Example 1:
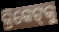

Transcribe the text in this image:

କ୍ରିକେଟ୍‌କୁ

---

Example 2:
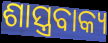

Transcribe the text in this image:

ଶାସ୍ତ୍ରବାକ୍ୟ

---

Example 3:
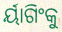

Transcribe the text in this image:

ର୍ୟାଗିଂକୁ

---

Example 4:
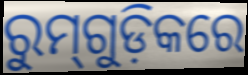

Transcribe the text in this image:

ରୁମ୍‌ଗୁଡ଼ିକରେ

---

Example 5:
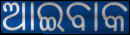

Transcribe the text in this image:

ଆଇବାକ